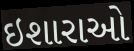
ઇશારાઓ